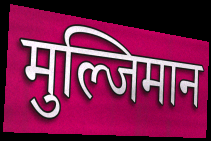
मुल्जिमान